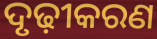
ଦୃଢ଼ୀକରଣ